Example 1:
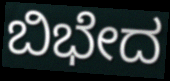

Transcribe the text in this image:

ಬಿಭೇದ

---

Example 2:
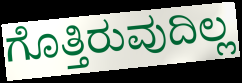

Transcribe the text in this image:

ಗೊತ್ತಿರುವುದಿಲ್ಲ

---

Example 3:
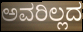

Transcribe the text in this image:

ಅವರಿಲ್ಲದ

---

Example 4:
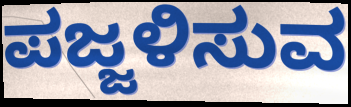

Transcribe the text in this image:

ಪಜ್ಜಳಿಸುವ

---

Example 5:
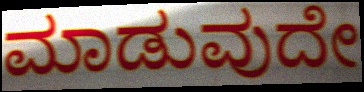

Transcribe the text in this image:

ಮಾಡುವುದೇ